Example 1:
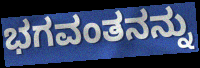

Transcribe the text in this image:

ಭಗವಂತನನ್ನು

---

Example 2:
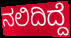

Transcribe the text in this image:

ನಲಿದಿದ್ದೆ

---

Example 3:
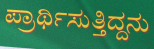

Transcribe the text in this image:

ಪ್ರಾರ್ಥಿಸುತ್ತಿದ್ದನು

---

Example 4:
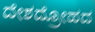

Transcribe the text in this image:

ದೇಶದ್ರೋಹದ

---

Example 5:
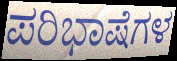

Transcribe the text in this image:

ಪರಿಭಾಷೆಗಳ